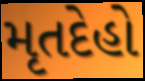
મૃતદેહો